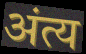
अंत्य